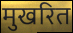
मुखरित